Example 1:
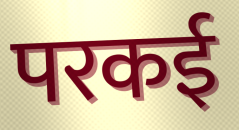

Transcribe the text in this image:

परकई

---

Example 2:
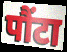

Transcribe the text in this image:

पौंटा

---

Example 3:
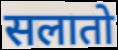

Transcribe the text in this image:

सलातो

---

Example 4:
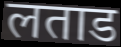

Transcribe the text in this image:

लताड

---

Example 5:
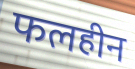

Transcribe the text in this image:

फलहीन